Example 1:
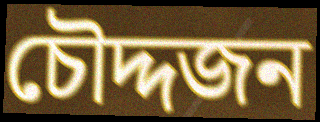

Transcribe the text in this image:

চৌদ্দজন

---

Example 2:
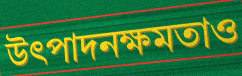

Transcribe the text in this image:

উৎপাদনক্ষমতাও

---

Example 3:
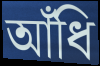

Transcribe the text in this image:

আঁধি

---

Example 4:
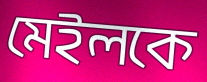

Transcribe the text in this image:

মেইলকে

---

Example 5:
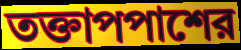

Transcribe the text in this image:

তক্তাপপাশের